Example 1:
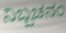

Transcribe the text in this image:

ನಿಬ್ಬಚನಂ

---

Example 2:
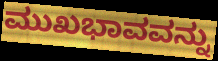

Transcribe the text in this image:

ಮುಖಭಾವವನ್ನು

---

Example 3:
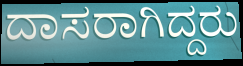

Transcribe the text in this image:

ದಾಸರಾಗಿದ್ದರು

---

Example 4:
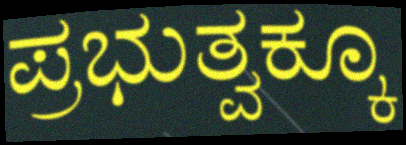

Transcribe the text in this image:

ಪ್ರಭುತ್ವಕ್ಕೂ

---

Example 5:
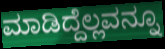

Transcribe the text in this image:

ಮಾಡಿದ್ದೆಲ್ಲವನ್ನೂ